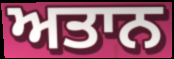
ਅਤਾਨ